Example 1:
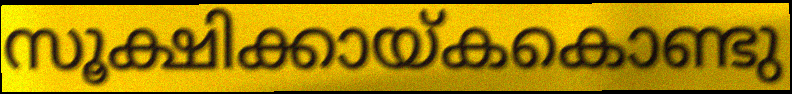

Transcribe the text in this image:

സൂക്ഷിക്കായ്കകൊണ്ടു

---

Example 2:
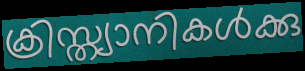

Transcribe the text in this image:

ക്രിസ്ത്യാനികൾക്കു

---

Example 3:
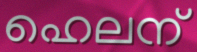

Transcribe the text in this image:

ഹെലന്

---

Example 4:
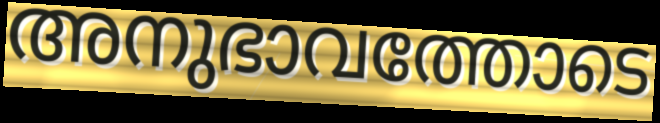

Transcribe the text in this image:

അനുഭാവത്തോടെ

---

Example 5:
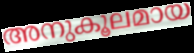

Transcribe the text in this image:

അനുകൂലമായ